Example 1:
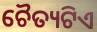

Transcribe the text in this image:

ଚୈତ୍ୟଟିଏ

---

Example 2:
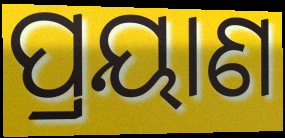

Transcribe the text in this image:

ପ୍ରୟାଣ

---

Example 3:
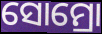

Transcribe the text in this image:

ସୋମ୍ରୋ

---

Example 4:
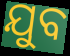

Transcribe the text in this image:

ଯୁବ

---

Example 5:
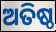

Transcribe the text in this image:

ଅତିଷ୍ଠ